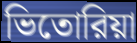
ভিতোরিয়া